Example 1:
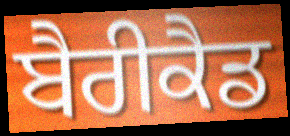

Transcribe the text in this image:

ਬੈਰੀਕੈਡ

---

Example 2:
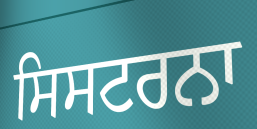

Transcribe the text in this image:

ਸਿਸਟਰਨਾ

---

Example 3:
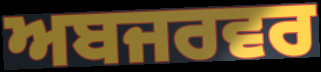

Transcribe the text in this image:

ਅਬਜਰਵਰ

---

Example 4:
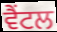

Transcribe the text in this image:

ਵੈਂਟਲ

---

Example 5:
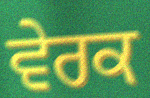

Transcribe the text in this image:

ਵੇਰਕ